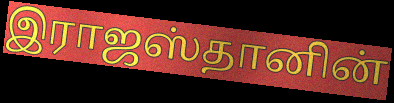
இராஜஸ்தானின்